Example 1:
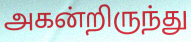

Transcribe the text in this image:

அகன்றிருந்து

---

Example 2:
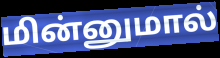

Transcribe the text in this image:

மின்னுமால்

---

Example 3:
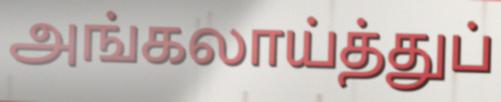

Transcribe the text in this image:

அங்கலாய்த்துப்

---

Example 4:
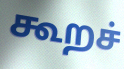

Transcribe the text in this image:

கூறச்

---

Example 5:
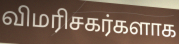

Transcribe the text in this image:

விமரிசகர்களாக